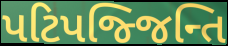
પટિપજ્જિન્તિ